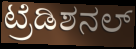
ಟ್ರೆಡಿಶನಲ್